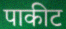
पाकीट